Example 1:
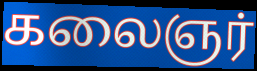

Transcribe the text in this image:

கலைஞர்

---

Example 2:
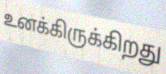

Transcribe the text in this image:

உனக்கிருக்கிறது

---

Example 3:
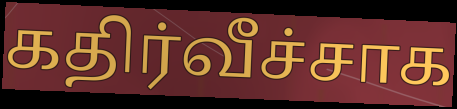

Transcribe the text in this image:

கதிர்வீச்சாக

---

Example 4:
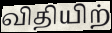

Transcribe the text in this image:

விதியிற்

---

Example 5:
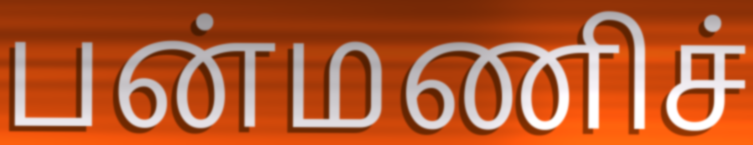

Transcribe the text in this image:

பன்மணிச்